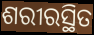
ଶରୀରସ୍ଥିତ